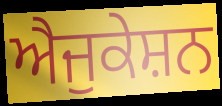
ਐਜੁਕੇਸ਼ਨ